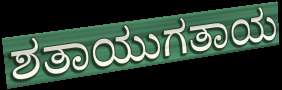
ಶತಾಯುಗತಾಯ